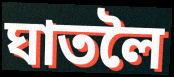
ঘাতলৈ